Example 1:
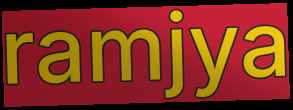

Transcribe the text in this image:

ramjya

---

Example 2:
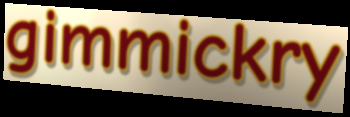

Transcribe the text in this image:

gimmickry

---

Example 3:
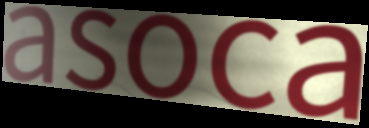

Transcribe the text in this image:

asoca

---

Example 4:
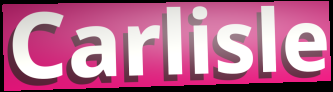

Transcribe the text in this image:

Carlisle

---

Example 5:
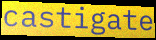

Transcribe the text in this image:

castigate